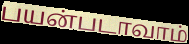
பயன்படாவாம்